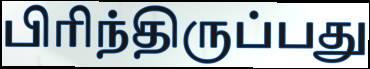
பிரிந்திருப்பது